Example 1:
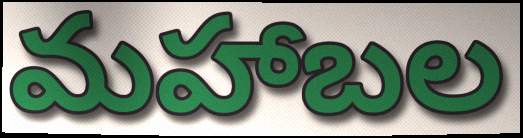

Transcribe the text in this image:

మహాబల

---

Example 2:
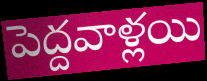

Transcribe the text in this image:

పెద్దవాళ్లయి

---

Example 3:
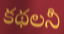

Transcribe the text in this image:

కథలనీ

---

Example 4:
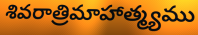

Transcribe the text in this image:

శివరాత్రిమాహాత్మ్యము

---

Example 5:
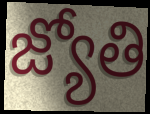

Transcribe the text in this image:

జ్యోతి